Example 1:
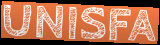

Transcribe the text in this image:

UNISFA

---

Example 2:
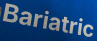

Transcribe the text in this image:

Bariatric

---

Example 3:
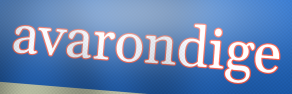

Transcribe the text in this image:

avarondige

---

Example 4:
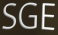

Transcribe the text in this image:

SGE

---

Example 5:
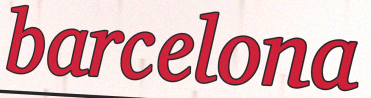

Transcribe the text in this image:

barcelona